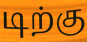
டிற்கு